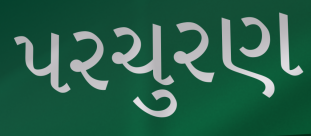
પરચુરણ